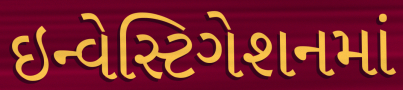
ઇન્વેસ્ટિગેશનમાં